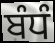
ਬੰਧੰ